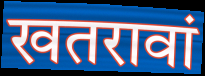
खतरावां